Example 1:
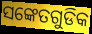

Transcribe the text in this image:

ସଙ୍କେତଗୁଡିକ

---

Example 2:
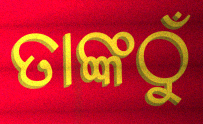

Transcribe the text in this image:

ତାଙ୍କଠୁଁ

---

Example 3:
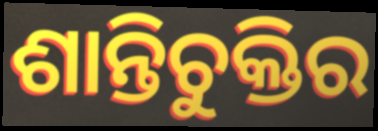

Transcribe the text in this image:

ଶାନ୍ତିଚୁକ୍ତିର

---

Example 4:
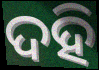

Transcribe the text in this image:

ଦହି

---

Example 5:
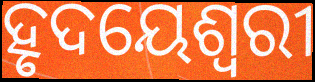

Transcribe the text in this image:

ହୃଦୟେଶ୍ୱରୀ